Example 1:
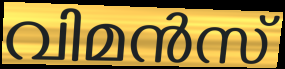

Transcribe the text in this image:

വിമൻസ്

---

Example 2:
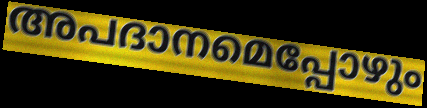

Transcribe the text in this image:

അപദാനമെപ്പോഴും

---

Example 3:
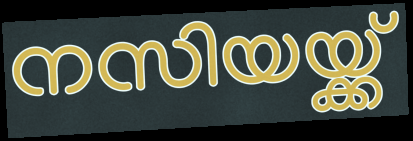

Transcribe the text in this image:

നസിയയ്ക്ക്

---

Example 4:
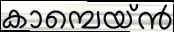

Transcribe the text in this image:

കാമ്പെയ്ൻ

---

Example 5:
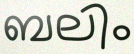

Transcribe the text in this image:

ബലിം